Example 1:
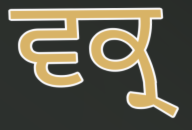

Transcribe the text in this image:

ਵਕ੍ਰ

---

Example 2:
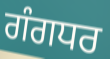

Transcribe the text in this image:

ਗੰਗਧਰ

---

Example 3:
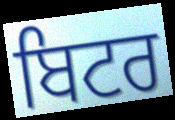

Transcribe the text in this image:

ਬਿਟਰ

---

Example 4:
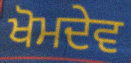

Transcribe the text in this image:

ਖੋਮਦੇਵ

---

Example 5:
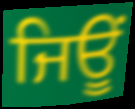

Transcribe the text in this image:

ਜਿਊਂ